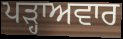
ਪੜ੍ਹਾਅਵਾਰ